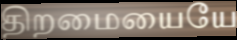
திறமையையே